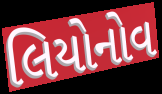
લિયોનોવ